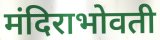
मंदिराभोवती